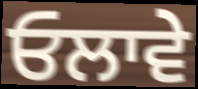
ਓਲਾਵੇ